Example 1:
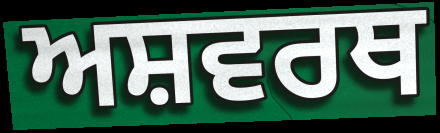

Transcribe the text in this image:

ਅਸ਼ਵਰਥ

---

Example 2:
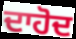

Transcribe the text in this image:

ਦਾਹੋਦ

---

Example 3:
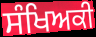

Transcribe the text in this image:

ਸੰਖਿਅਕੀ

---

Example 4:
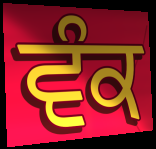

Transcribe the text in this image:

ਵੰਕ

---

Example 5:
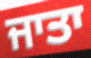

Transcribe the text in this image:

ਜਾਤਾ